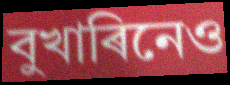
বুখাৰিনেও